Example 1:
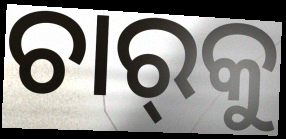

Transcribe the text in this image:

ଚାର୍‌କୁ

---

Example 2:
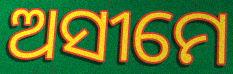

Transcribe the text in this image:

ଅସୀମେ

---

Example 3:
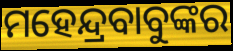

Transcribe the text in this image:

ମହେନ୍ଦ୍ରବାବୁଙ୍କର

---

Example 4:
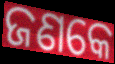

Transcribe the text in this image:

ଜଣକେ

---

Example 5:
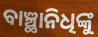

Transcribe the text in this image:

ବାଞ୍ଛାନିଧିଙ୍କୁ